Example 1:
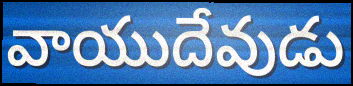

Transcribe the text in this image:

వాయుదేవుడు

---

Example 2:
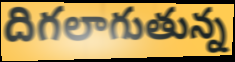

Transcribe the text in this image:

దిగలాగుతున్న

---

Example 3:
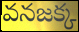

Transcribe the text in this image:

వనజక్క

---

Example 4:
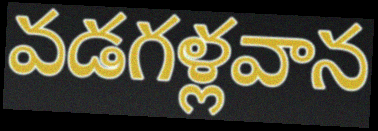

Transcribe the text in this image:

వడగళ్లవాన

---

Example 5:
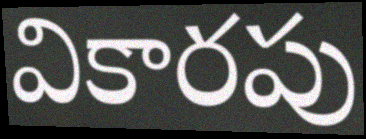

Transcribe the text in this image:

వికారపు